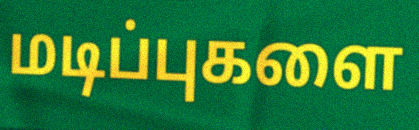
மடிப்புகளை